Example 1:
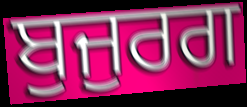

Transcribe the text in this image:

ਬੁਜੁਰਗ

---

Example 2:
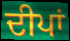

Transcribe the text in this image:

ਦੀਪਾਂ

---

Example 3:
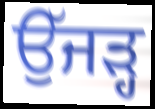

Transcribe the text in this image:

ਉੱਜੜ੍ਹ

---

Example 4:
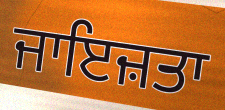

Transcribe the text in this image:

ਜਾਇਜ਼ਤਾ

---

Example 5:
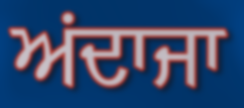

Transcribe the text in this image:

ਅਂਦਾਜਾ